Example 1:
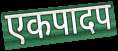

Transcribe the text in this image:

एकपादप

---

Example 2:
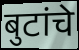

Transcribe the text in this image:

बुटांचे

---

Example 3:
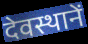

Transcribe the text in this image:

देवस्थानें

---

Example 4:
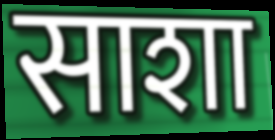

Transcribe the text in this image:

साशा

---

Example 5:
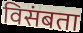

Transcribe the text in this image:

विसंबता